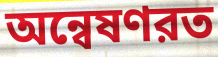
অন্বেষণরত